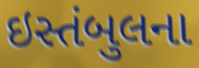
ઇસ્તંબુલના